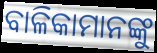
ବାଳିକାମାନଙ୍କୁ